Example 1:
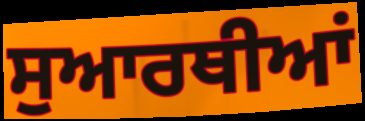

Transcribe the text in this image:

ਸੁਆਰਥੀਆਂ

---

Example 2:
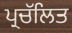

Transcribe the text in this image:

ਪ੍ਰਚੱਲਿਤ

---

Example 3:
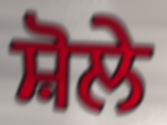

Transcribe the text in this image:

ਸ਼ੋਲੇ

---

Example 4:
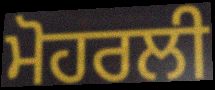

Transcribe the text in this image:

ਮੋਹਰਲੀ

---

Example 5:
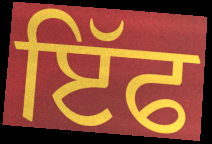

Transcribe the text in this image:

ਇੱਫ